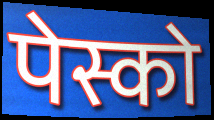
पेस्को